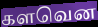
களவென